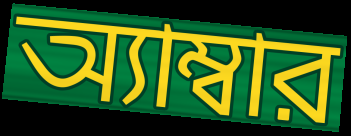
অ্যাম্বার